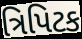
ત્રિપિટક